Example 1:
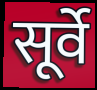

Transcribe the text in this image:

सूर्वे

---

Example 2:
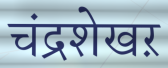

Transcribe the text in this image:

चंद्रशेखऱ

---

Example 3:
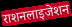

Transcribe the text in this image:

राशनलाइजेशन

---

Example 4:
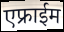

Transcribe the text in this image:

एफ्राईम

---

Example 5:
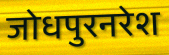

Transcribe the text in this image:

जोधपुरनरेश